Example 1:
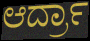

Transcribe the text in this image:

ಆರ್ದ್ರಾ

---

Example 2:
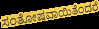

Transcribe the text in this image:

ಸಂತೋಷವಾಯಿತೆಂದರೆ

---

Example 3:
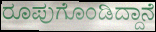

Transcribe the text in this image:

ರೂಪುಗೊಂಡಿದ್ದಾನೆ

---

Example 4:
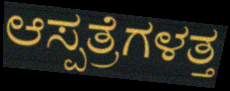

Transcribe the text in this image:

ಆಸ್ಪತ್ರೆಗಳತ್ತ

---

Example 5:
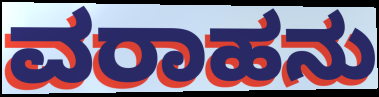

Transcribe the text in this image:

ವರಾಹನು